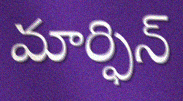
మార్ఫిన్